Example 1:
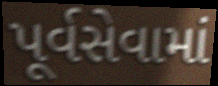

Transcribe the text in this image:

પૂર્વસેવામાં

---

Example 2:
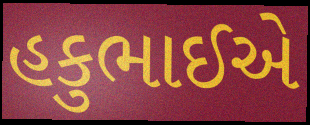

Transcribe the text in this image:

હકુભાઈએ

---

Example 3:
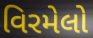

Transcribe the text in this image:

વિરમેલો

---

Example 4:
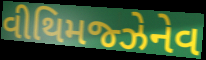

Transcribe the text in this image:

વીથિમજ્ઝેનેવ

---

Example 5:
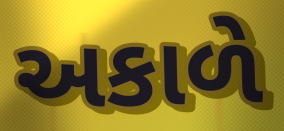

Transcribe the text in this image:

અકાળે